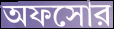
অফসোর